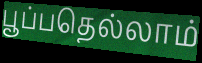
பூப்பதெல்லாம்